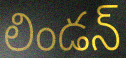
లిండన్